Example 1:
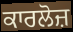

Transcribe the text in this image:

ਕਾਰਲੋਜ਼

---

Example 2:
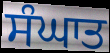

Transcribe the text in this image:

ਸੰਘਾਤ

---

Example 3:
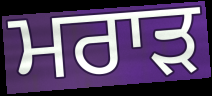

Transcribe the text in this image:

ਮਰਾੜ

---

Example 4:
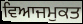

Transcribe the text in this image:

ਵਿਆਜਮੁਕਤ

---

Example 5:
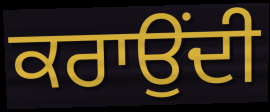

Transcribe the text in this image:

ਕਰਾਉਂਦੀ